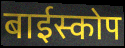
बाईस्कोप